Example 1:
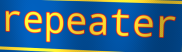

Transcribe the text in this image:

repeater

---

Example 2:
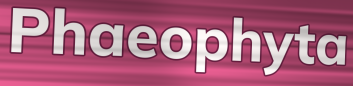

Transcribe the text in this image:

Phaeophyta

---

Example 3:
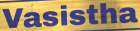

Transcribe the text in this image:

Vasistha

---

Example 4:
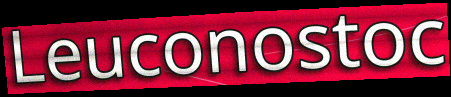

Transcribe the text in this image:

Leuconostoc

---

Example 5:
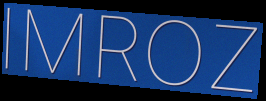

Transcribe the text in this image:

IMROZ